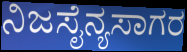
ನಿಜಸೈನ್ಯಸಾಗರ